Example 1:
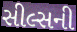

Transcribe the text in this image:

સીલ્સની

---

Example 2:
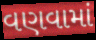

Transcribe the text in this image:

વણવામાં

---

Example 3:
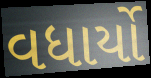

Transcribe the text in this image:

વધાર્યો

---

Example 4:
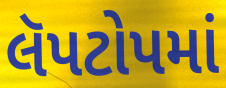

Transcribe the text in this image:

લૅપટોપમાં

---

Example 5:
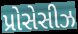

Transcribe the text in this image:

પ્રોસેસીઝ